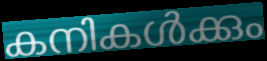
കനികൾക്കും